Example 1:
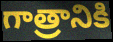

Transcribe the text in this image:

గాత్రానికి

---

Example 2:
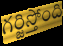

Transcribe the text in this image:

గర్జిస్తోంది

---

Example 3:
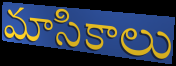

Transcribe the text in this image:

మాసికాలు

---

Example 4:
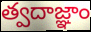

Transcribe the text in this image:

త్వదాజ్ఞాం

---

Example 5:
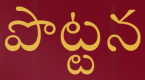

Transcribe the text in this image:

పొట్టన